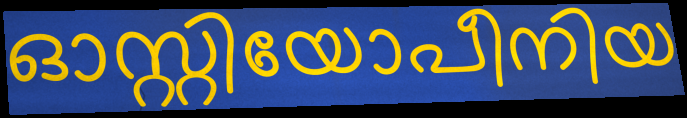
ഓസ്റ്റിയോപീനിയ